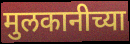
मुलकानीच्या